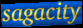
sagacity